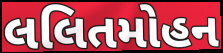
લલિતમોહન